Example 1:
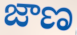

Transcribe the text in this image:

జాణ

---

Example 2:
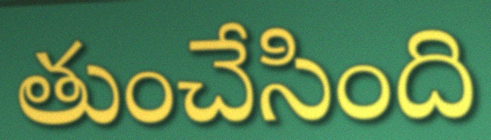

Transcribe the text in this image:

తుంచేసింది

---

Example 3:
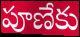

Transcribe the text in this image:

పూణేకు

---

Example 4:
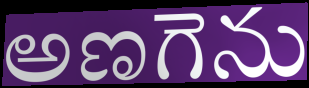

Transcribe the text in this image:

అణగెను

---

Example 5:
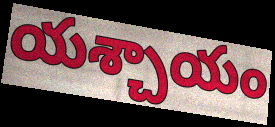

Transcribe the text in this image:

యశ్చాయం